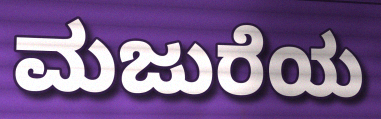
ಮಜುರೆಯ